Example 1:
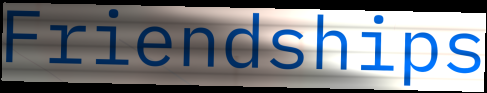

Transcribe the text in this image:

Friendships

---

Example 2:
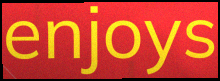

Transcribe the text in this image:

enjoys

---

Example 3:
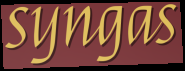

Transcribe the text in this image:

syngas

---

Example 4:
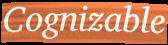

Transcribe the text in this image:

Cognizable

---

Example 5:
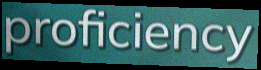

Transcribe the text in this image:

proficiency